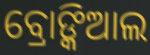
ବ୍ରୋଙ୍କିଆଲ